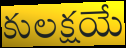
కులక్షయే